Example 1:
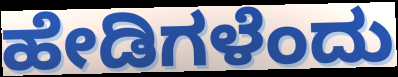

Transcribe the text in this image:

ಹೇಡಿಗಳೆಂದು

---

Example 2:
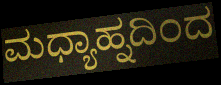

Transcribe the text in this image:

ಮಧ್ಯಾಹ್ನದಿಂದ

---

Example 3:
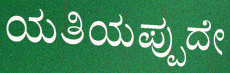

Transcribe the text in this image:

ಯತಿಯಪ್ಪುದೇ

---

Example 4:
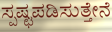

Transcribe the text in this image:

ಸ್ಪಷ್ಟಪಡಿಸುತ್ತೇನೆ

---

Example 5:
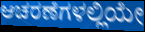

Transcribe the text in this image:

ಆಚರಣೆಗಳಲ್ಲಿಯೇ